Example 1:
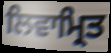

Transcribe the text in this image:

ਲਿਵਾਮ੍ਰਿਤ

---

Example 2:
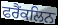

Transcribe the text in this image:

ਫਰੈਂਕਲਿਨ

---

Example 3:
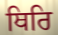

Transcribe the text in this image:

ਥਿਰਿ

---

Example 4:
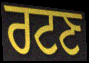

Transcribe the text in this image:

ਰਟਣ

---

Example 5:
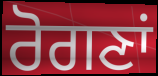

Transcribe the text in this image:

ਰੋਗਣਾਂ